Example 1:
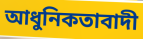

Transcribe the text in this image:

আধুনিকতাবাদী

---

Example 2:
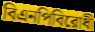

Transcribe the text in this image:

বিএনপিবিরোধী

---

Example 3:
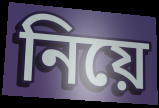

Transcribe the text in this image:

নিয়ে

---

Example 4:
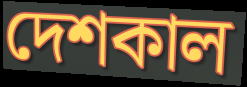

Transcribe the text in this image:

দেশকাল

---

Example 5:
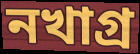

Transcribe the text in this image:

নখাগ্র